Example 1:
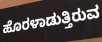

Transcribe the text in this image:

ಹೊರಳಾಡುತ್ತಿರುವ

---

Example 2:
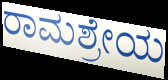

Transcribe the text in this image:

ರಾಮಶ್ರೇಯ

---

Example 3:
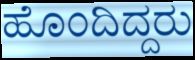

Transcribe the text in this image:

ಹೊಂದಿದ್ದರು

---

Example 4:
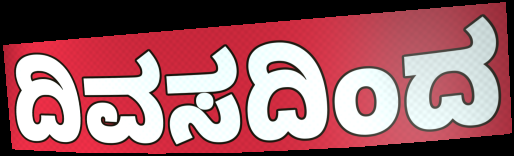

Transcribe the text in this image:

ದಿವಸದಿಂದ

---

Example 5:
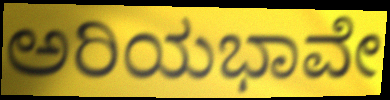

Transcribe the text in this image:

ಅರಿಯಭಾವೇ